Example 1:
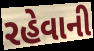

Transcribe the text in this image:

રહેવાની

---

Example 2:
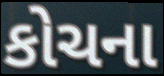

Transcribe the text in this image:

કોચના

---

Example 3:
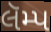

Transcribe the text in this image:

લૅમ્પ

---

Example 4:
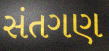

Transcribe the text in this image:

સંતગણ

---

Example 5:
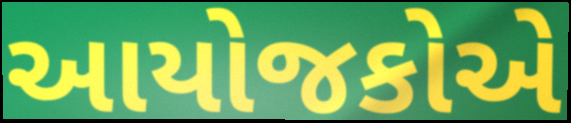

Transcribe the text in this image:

આયોજકોએ